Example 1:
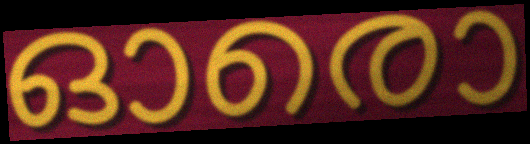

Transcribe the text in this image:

ഓരൊ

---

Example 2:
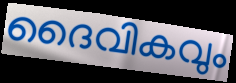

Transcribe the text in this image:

ദൈവികവും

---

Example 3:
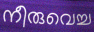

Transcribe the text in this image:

നീരുവെച്ച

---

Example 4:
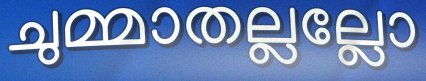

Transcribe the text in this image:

ചുമ്മാതല്ലല്ലോ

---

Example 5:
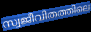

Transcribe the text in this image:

സ്വജീവിതത്തിലെ